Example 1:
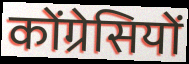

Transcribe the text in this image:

कोंग्रेसियों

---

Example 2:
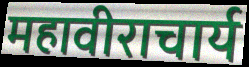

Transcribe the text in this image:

महावीराचार्य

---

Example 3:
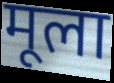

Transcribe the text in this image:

मूला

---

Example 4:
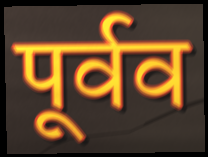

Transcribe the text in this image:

पूर्वव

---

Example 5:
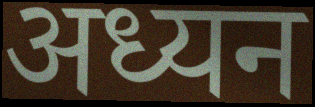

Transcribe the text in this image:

अध्यन